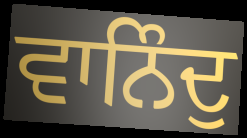
ਵਾਨਿੰਦੁ